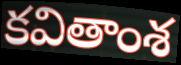
కవితాంశ